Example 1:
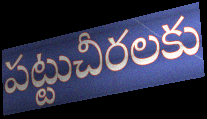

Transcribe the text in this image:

పట్టుచీరలకు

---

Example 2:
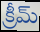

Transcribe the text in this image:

క్రీమ్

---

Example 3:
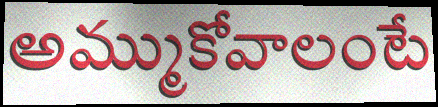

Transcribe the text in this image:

అమ్ముకోవాలంటే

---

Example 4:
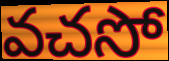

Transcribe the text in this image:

వచసో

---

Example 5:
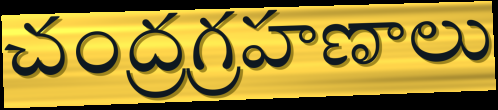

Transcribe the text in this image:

చంద్రగ్రహణాలు